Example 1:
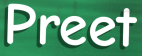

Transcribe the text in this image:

Preet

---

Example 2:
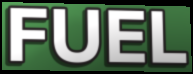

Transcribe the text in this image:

FUEL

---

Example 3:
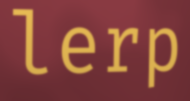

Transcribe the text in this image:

lerp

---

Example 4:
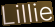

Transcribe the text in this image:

Lillie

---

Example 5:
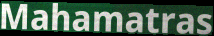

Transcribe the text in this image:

Mahamatras